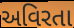
અવિરતા